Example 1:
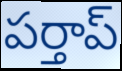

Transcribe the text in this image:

పర్తాప్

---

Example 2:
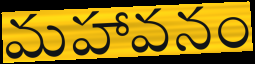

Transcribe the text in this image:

మహావనం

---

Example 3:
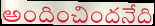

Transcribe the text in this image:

అందించిందనేది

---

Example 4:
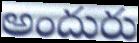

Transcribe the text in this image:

అందురు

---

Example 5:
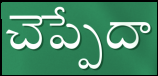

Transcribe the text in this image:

చెప్పేదా